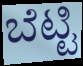
ಬೆಟ್ಟಿ